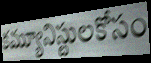
కమ్యూనిస్టులకోసం